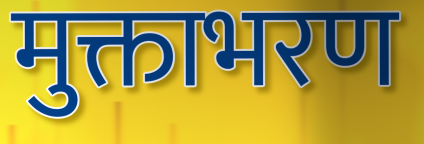
मुक्ताभरण